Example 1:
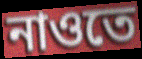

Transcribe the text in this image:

নাওতে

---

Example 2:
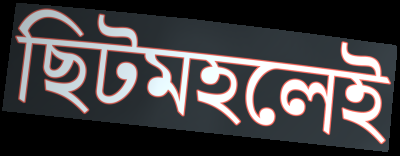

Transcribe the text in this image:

ছিটমহলেই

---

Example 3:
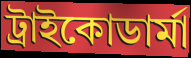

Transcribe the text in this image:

ট্রাইকোডার্মা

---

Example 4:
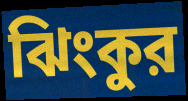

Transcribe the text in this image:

ঝিংকুর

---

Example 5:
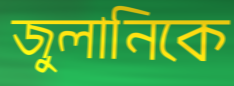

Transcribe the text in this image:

জুলানিকে